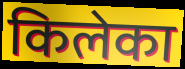
किलेका